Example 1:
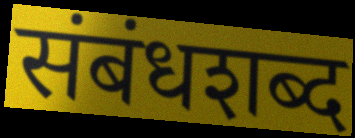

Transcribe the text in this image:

संबंधशब्द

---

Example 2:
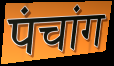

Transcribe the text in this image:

पंचांग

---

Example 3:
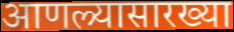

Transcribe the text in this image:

आणल्यासारख्या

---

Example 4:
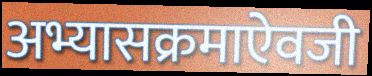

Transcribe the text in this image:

अभ्यासक्रमाऐवजी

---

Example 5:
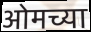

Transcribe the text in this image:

ओमच्या